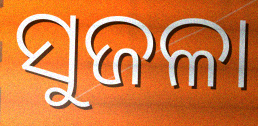
ସୁଜଳା